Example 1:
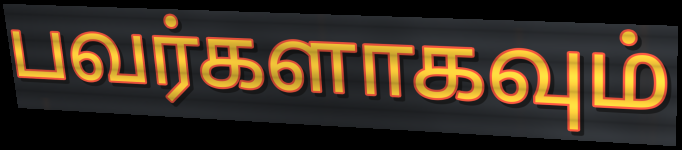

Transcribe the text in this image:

பவர்களாகவும்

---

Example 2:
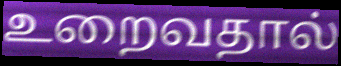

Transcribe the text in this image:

உறைவதால்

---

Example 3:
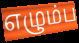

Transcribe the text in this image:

எழும்ப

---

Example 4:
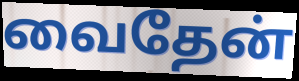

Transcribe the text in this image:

வைதேன்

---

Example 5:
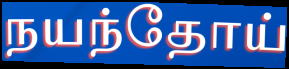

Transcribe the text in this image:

நயந்தோய்